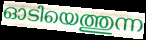
ഓടിയെത്തുന്ന